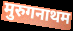
मुरुगनाथम